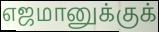
எஜமானுக்குக்